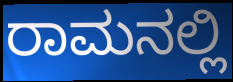
ರಾಮನಲ್ಲಿ